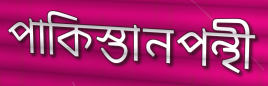
পাকিস্তানপন্থী